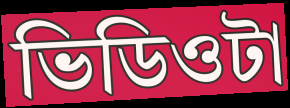
ভিডিওটা